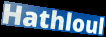
Hathloul